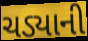
ચડ્યાની